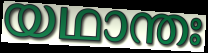
യഥാന്തഃ